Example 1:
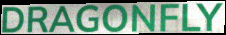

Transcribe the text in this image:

DRAGONFLY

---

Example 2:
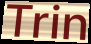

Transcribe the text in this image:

Trin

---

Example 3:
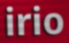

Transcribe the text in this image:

irio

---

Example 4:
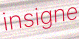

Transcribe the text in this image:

insigne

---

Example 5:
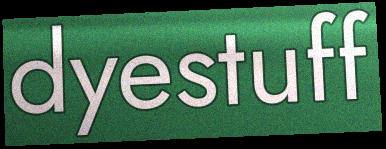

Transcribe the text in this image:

dyestuff